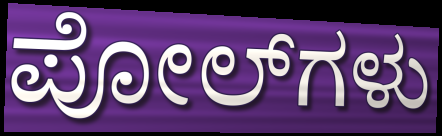
ಪೋಲ್‌ಗಳು